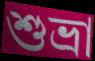
শুভ্রা